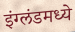
इंग्लंडमध्ये